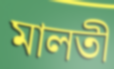
মালতী